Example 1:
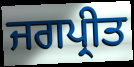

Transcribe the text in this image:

ਜਗਪ੍ਰੀਤ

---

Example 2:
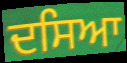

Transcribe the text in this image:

ਦਸਿਆ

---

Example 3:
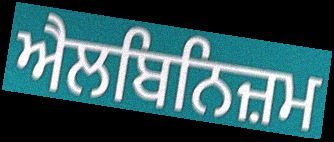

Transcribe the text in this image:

ਐਲਬਿਨਿਜ਼ਮ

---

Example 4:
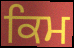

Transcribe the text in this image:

ਕਿਮ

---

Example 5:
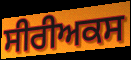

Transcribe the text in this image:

ਸੀਰੀਅਕਸ